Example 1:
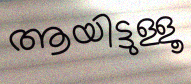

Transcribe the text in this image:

ആയിട്ടുള്ളൂ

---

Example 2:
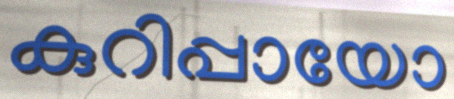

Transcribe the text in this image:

കുറിപ്പായോ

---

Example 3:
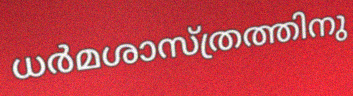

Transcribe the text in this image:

ധർമശാസ്ത്രത്തിനു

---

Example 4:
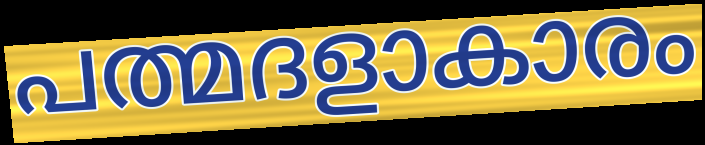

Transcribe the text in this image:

പത്മദളാകാരം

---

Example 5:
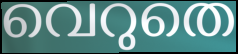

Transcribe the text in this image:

വെറുതെ